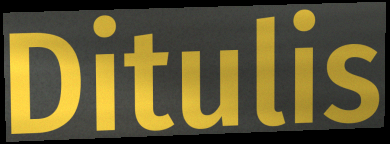
Ditulis